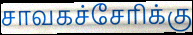
சாவகச்சேரிக்கு